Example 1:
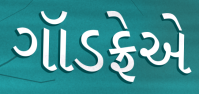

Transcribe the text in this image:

ગૉડફ્રેએ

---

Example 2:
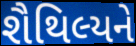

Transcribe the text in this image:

શૈથિલ્યને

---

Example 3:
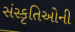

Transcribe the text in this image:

સંસ્કૃતિઓની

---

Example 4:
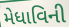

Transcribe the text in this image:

મેધાવિની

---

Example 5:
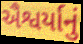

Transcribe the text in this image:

ઐશ્વર્યાનું